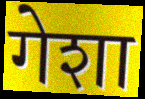
गेशा